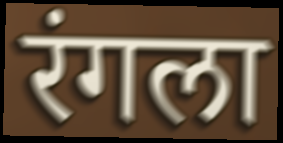
रंगला